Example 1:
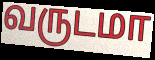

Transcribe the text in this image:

வருடமா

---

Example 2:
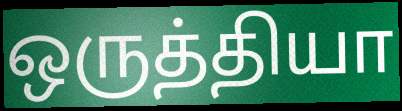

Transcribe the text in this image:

ஒருத்தியா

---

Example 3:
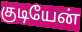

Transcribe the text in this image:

குடியேன்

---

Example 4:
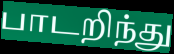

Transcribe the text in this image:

பாடறிந்து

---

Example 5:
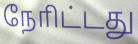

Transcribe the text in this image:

நேரிட்டது